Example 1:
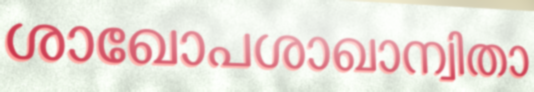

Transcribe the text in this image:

ശാഖോപശാഖാന്വിതാ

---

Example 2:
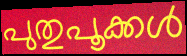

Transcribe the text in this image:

പുതുപൂക്കൾ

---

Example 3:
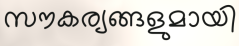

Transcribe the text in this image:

സൗകര്യങ്ങളുമായി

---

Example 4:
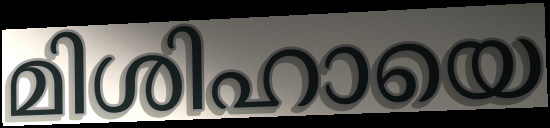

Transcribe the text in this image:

മിശിഹായെ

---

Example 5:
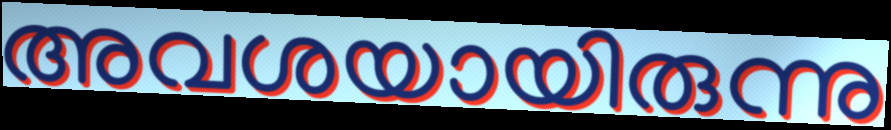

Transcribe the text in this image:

അവശയായിരുന്നു